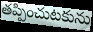
తప్పించుటకును